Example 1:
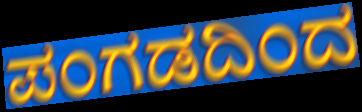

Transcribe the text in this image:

ಪಂಗಡದಿಂದ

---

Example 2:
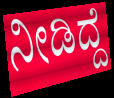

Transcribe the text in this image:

ನೀಡಿದ್ದೆ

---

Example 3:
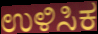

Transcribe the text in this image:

ಉಳಿಸಿಕ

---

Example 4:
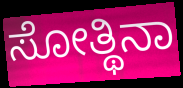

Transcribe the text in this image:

ಸೋತ್ಥಿನಾ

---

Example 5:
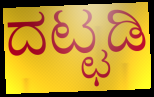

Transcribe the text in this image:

ದಟ್ಟಡಿ